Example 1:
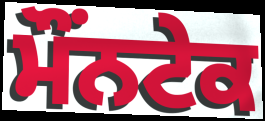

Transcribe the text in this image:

ਮੌਂਨਟੇਕ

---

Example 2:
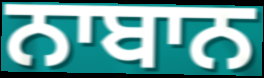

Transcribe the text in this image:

ਨਾਬਾਨ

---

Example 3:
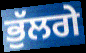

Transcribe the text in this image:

ਭੁੱਲਗੇ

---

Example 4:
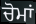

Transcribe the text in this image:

ਚੋਮਾਂ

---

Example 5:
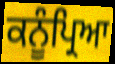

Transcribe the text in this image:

ਕਨੂੰਪ੍ਰਿਆ